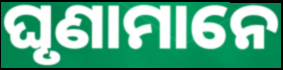
ଘୃଣାମାନେ